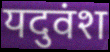
यदुवंश